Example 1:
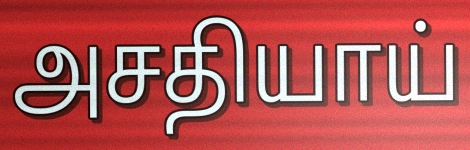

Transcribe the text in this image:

அசதியாய்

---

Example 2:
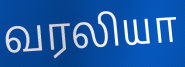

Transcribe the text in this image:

வரலியா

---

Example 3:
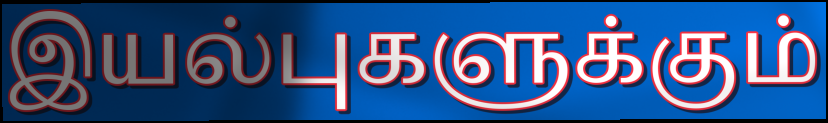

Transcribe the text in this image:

இயல்புகளுக்கும்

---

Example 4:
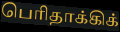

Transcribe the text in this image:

பெரிதாக்கிக்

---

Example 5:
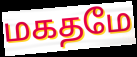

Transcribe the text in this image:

மகதமே